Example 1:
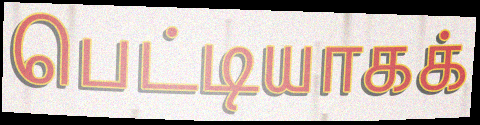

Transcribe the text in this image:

பெட்டியாகக்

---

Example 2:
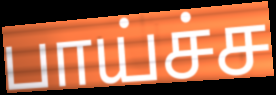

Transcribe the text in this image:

பாய்ச்ச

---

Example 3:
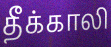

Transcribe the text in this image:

தீக்காலி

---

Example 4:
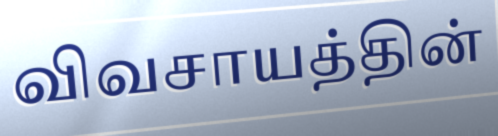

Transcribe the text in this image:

விவசாயத்தின்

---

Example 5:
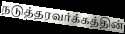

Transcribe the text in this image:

நடுத்தரவர்க்கத்தின்